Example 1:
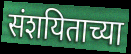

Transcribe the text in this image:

संशयिताच्या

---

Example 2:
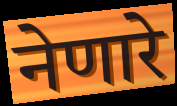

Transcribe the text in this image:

नेणारे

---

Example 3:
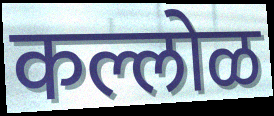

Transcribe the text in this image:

कल्लोळ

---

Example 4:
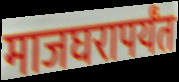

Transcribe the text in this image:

माजघरापर्यंत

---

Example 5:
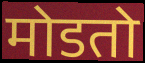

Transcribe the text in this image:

मोडतो